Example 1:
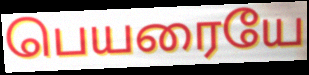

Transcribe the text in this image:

பெயரையே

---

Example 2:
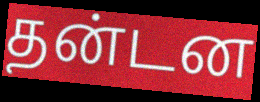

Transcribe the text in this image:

தன்டன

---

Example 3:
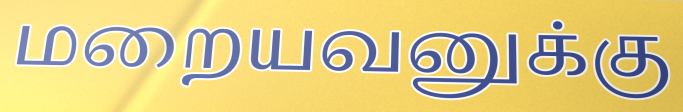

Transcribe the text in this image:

மறையவனுக்கு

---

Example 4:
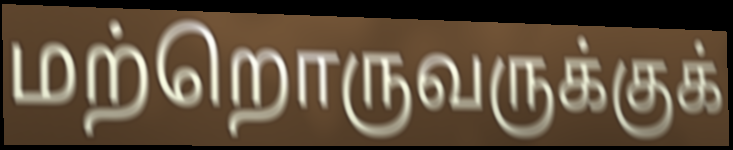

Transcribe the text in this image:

மற்றொருவருக்குக்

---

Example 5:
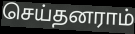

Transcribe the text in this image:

செய்தனராம்